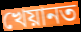
খেয়ানত